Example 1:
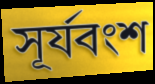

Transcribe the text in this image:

সূর্যবংশ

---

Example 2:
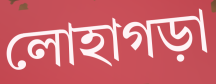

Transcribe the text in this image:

লোহাগড়া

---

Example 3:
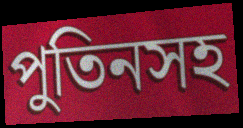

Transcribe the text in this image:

পুতিনসহ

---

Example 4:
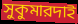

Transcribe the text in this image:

সুকুমারদাই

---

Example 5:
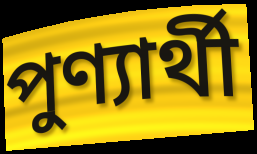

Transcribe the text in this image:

পুণ্যার্থী